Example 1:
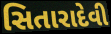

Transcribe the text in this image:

સિતારાદેવી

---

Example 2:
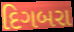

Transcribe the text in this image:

દિગબરા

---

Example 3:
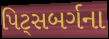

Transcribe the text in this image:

પિટ્સબર્ગના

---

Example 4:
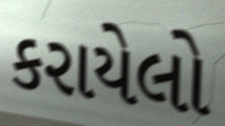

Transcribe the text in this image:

કરાયેલો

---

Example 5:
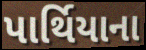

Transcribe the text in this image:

પાર્થિયાના